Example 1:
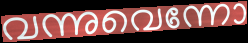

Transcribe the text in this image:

വന്നുവെന്നോ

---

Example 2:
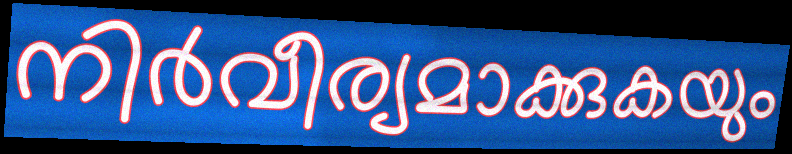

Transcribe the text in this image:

നിർവീര്യമാക്കുകയും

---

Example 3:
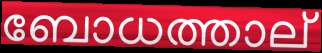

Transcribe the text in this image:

ബോധത്താല്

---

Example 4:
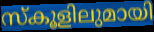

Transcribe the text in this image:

സ്കൂളിലുമായി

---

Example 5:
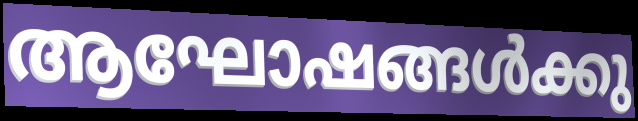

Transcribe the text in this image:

ആഘോഷങ്ങൾക്കു